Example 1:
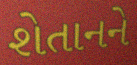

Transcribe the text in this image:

શેતાનને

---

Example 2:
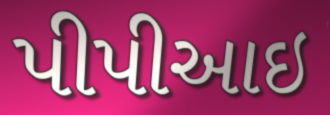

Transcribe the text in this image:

પીપીઆઇ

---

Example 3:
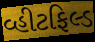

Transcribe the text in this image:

વ્હીટફિલ્ડ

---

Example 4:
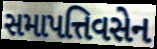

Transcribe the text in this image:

સમાપત્તિવસેન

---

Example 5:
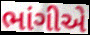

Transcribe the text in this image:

ભાંગીએ